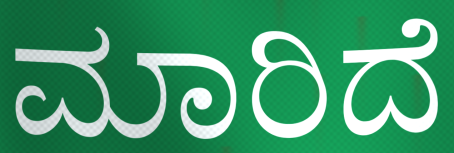
ಮಾರಿದೆ